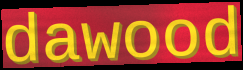
dawood